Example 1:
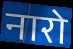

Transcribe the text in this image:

नारो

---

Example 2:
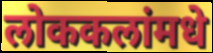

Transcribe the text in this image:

लोककलांमधे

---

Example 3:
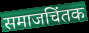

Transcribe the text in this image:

समाजचिंतक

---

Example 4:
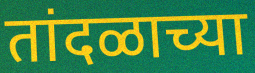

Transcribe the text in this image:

तांदळाच्या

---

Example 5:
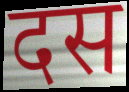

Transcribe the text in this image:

दस